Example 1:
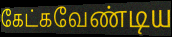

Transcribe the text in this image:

கேட்கவேண்டிய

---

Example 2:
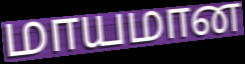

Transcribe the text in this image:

மாயமான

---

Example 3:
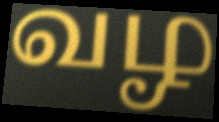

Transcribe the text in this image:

வழ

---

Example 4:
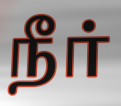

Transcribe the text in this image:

நீர்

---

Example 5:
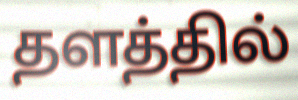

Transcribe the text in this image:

தளத்தில்